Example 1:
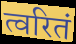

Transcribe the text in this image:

त्वरितं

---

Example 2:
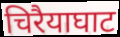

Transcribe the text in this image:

चिरैयाघाट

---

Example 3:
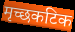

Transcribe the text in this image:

मृच्छकटिक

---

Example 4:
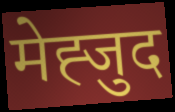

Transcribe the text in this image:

मेह्जुद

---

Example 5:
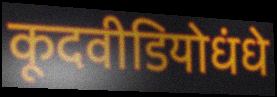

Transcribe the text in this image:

कूदवीडियोधंधे